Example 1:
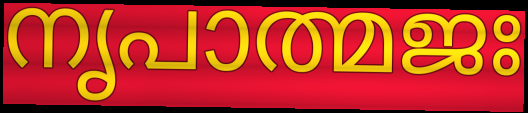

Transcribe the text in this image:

നൃപാത്മജഃ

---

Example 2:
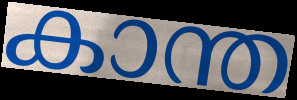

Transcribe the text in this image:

കാന്ത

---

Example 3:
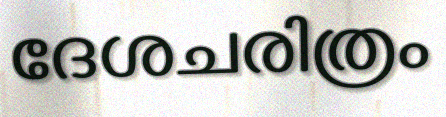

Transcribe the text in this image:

ദേശചരിത്രം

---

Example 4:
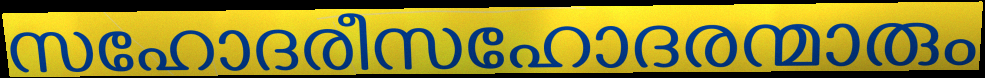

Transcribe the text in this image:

സഹോദരീസഹോദരന്മാരും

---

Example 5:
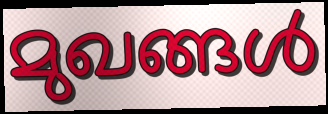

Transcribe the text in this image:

മുഖങ്ങൾ